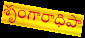
శృంగారాధిపా